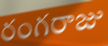
రంగరాజు